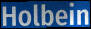
Holbein